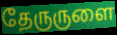
தேருருளை